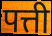
पत्ती